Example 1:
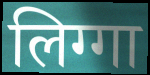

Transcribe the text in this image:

लिग्गा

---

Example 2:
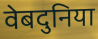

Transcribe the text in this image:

वेबदुनिया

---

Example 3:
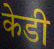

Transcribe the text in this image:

केडी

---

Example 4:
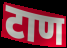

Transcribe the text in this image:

टाण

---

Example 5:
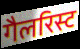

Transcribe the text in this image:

गैलरिस्ट